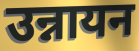
उन्नायन